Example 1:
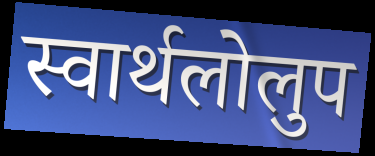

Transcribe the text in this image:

स्वार्थलोलुप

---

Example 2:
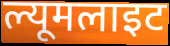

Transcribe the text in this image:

ल्यूमलाइट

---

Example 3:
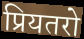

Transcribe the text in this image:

प्रियतरो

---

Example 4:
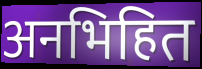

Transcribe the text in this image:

अनभिहित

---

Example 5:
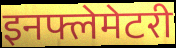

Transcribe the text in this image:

इनफ्लेमेटरी